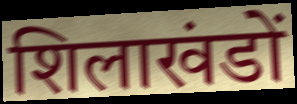
शिलाखंडों